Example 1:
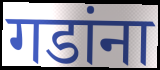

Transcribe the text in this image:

गडांना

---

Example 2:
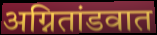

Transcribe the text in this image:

अग्नितांडवात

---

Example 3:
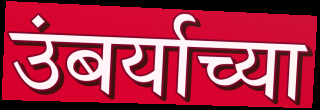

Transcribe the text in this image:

उंबर्याच्या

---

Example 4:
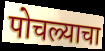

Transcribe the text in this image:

पोचल्याचा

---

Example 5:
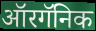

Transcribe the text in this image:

ऑरगॅनिक